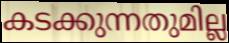
കടക്കുന്നതുമില്ല